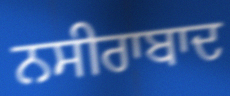
ਨਸੀਰਾਬਾਦ